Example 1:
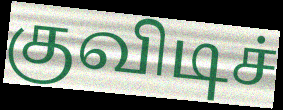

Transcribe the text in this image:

குவிடிச்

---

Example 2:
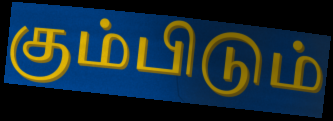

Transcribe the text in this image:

கும்பிடும்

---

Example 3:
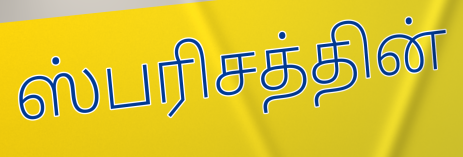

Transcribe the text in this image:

ஸ்பரிசத்தின்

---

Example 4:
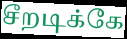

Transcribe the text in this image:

சீறடிக்கே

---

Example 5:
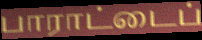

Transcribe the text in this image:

பாராட்டைப்